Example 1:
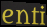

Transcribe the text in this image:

enti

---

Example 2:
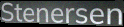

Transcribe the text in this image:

Stenersen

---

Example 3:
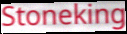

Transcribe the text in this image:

Stoneking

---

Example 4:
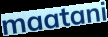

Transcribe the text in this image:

maatani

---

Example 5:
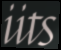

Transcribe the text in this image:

iits